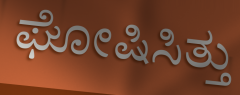
ಘೋಷಿಸಿತ್ತು